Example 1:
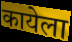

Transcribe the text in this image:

कायेला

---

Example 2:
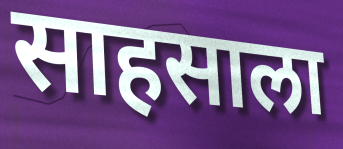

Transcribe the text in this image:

साहसाला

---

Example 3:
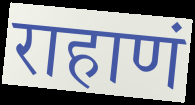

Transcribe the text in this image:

राहाणं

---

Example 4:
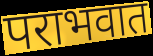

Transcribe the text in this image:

पराभवात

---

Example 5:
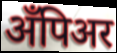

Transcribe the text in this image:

अँपिअर